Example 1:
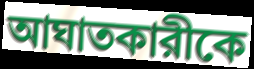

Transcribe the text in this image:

আঘাতকারীকে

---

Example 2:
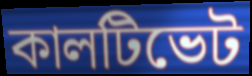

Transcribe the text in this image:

কালটিভেট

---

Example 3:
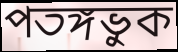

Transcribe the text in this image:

পতঙ্গভুক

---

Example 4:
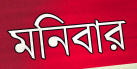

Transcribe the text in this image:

মনিবার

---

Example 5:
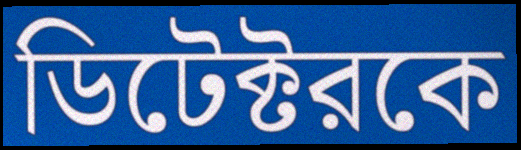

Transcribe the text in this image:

ডিটেক্টরকে